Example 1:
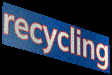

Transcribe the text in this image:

recycling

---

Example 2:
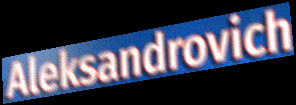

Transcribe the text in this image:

Aleksandrovich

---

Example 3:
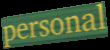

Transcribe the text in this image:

personal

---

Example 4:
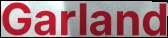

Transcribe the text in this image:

Garland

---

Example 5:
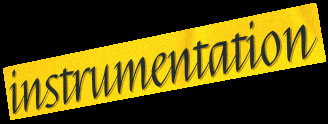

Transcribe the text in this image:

instrumentation